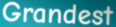
Grandest